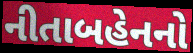
નીતાબહેનનો